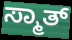
ಸ್ಮಾತ್